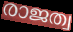
രാജത്വ